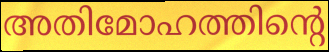
അതിമോഹത്തിന്റെ